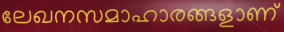
ലേഖനസമാഹാരങ്ങളാണ്